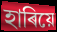
হাৰিয়ে